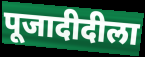
पूजादीदीला